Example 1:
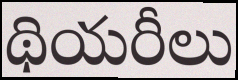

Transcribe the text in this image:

థియరీలు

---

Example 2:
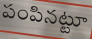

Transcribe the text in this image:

పంపినట్టూ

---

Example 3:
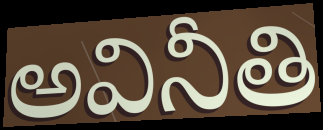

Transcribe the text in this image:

అవినీతి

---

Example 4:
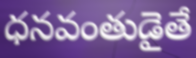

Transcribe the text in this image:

ధనవంతుడైతే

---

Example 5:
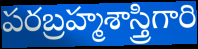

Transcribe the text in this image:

పరబ్రహ్మశాస్త్రిగారి